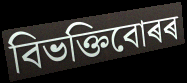
বিভক্তিবোৰৰ